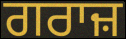
ਗਰਾਜ਼